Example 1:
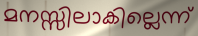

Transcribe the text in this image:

മനസ്സിലാകില്ലെന്ന്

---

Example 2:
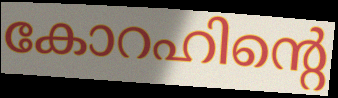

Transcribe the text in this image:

കോറഹിന്റെ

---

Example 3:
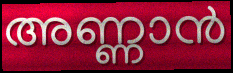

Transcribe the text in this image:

അണ്ണാൻ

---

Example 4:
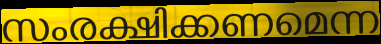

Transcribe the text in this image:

സംരക്ഷിക്കണമെന്ന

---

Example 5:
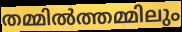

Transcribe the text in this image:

തമ്മിൽത്തമ്മിലും